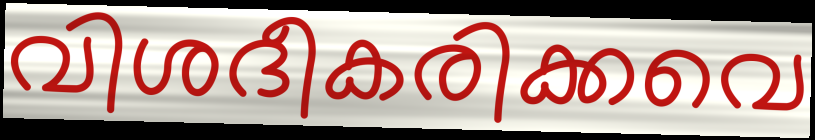
വിശദീകരിക്കവെ